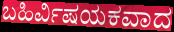
ಬಹಿರ್ವಿಷಯಕವಾದ